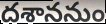
దశాననుం